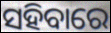
ସହିବାରେ